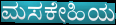
ಮಸಕೇಹಿಯ